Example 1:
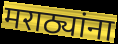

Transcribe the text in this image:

मराठ्यांना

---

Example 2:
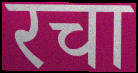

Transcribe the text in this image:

रचा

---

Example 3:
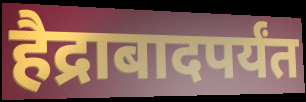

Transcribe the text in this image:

हैद्राबादपर्यंत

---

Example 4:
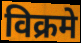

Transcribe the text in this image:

विक्रमे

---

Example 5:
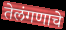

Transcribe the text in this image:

तेलंगणाचे